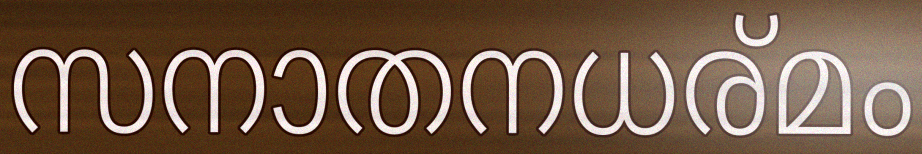
സനാതനധര്മം